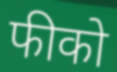
फीको